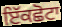
ਇੱਕਛੋਟਾ